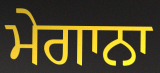
ਮੇਗਾਨਾ